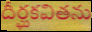
దీర్ఘకవితను